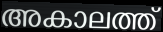
അകാലത്ത്